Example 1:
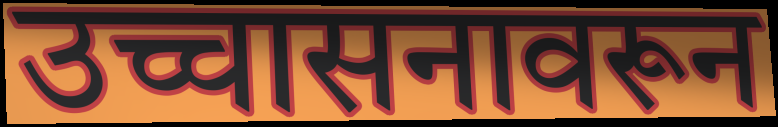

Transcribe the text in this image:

उच्चासनावरून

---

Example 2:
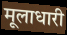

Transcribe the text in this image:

मूलाधारी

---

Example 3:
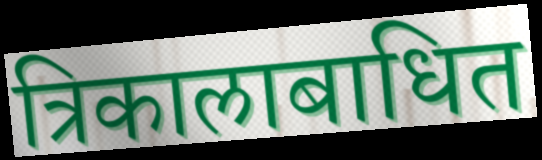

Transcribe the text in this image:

त्रिकालाबाधित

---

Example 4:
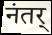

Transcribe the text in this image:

नंतर्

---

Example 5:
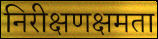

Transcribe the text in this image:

निरीक्षणक्षमता